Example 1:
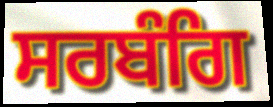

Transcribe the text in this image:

ਸਰਬੰਗਿ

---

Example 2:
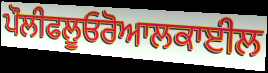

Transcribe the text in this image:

ਪੌਲੀਫਲੂਓਰੋਆਲਕਾਈਲ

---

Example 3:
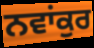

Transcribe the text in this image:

ਨਵਾਂਕੁਰ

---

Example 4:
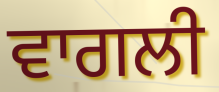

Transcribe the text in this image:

ਵਾਗਲੀ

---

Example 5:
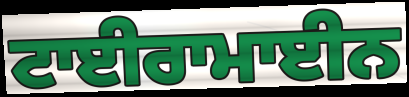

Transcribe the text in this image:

ਟਾਈਰਾਮਾਈਨ